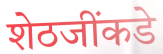
शेठजींकडे